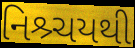
નિશ્ર્ચયથી